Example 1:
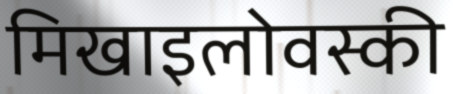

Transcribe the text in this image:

मिखाइलोवस्की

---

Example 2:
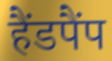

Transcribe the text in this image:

हैंडपैंप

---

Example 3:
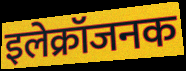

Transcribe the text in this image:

इलेक्रॉजनक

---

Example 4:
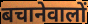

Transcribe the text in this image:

बचानेवालों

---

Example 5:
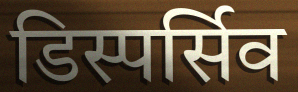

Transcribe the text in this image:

डिस्पर्सिव